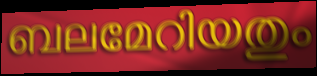
ബലമേറിയതും